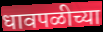
धावपळीच्या